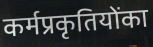
कर्मप्रकृतियोंका